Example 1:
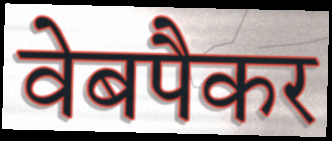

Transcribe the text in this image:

वेबपैकर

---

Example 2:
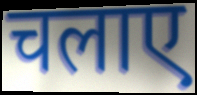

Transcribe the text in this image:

चलाए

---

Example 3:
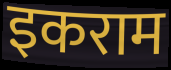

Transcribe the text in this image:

इकराम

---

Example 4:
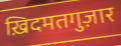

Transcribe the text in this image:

ख़िदमतगुज़ार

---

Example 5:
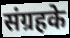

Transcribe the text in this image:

संग्रहके